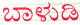
ಬಾಳುಡಿ